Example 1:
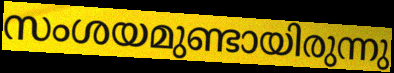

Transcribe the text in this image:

സംശയമുണ്ടായിരുന്നു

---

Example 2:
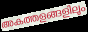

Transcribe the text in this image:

അകത്തളങ്ങളിലും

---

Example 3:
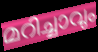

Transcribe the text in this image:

മറിച്ചാവും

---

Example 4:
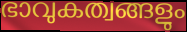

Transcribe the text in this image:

ഭാവുകത്വങ്ങളും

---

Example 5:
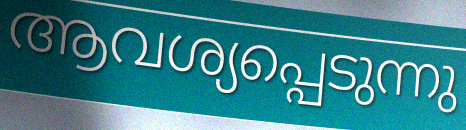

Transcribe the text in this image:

ആവശ്യപ്പെടുന്നു